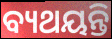
ବ୍ୟଥୟନ୍ତି